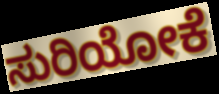
ಸುರಿಯೋಕೆ